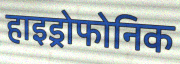
हाइड्रोफोनिक